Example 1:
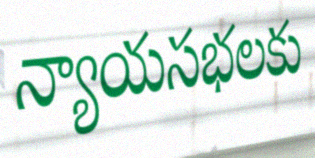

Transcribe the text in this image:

న్యాయసభలకు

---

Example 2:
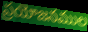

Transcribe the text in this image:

ప్రయోజనముల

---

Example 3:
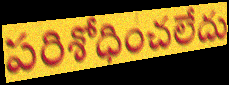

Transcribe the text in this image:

పరిశోధించలేదు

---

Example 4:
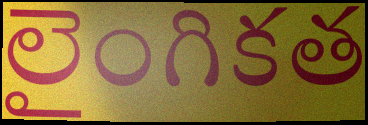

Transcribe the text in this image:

లైంగికత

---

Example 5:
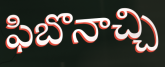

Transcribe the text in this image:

ఫిబొనాచ్చి